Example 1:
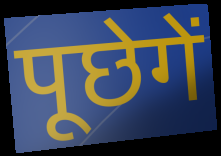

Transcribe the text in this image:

पूछेगें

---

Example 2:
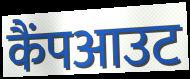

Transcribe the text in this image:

कैंपआउट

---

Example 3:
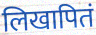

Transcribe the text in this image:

लिखापितं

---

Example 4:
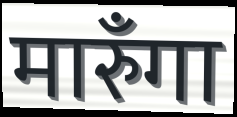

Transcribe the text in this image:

मारुँगा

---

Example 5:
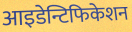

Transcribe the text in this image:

आइडेन्टिफिकेशन